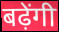
बढ़ेंगी